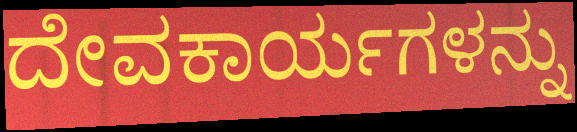
ದೇವಕಾರ್ಯಗಳನ್ನು